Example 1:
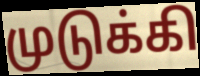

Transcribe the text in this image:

முடுக்கி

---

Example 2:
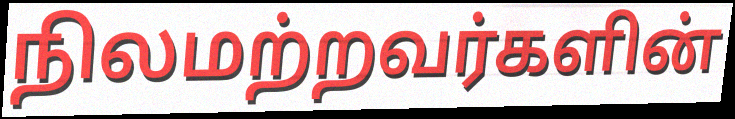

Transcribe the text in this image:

நிலமற்றவர்களின்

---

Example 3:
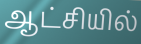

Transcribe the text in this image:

ஆட்சியில்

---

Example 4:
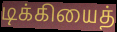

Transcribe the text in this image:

டிக்கியைத்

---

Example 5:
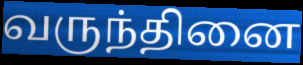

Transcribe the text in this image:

வருந்தினை